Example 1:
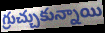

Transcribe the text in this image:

గ్రుచ్చుకున్నాయి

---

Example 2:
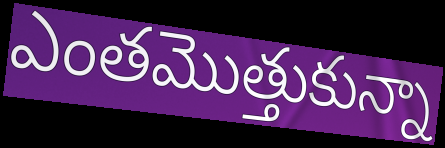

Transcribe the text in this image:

ఎంతమొత్తుకున్నా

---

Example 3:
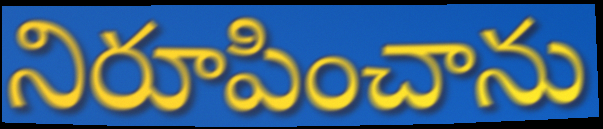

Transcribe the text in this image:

నిరూపించాను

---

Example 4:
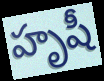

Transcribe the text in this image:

హృషీ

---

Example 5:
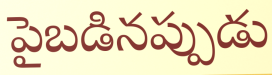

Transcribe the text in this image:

పైబడినప్పుడు